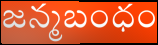
జన్మబంధం